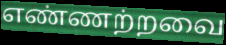
எண்ணற்றவை